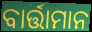
ବାର୍ତ୍ତାମାନ